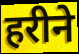
हरीने